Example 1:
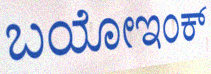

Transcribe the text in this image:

ಬಯೋಇಂಕ್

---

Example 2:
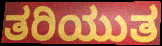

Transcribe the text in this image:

ತರಿಯುತ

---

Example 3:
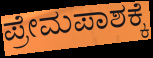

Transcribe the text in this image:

ಪ್ರೇಮಪಾಶಕ್ಕೆ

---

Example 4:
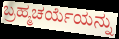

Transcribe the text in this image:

ಬ್ರಹ್ಮಚರ್ಯೆಯನ್ನು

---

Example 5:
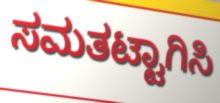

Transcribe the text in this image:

ಸಮತಟ್ಟಾಗಿಸಿ